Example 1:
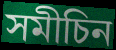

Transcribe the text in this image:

সমীচিন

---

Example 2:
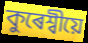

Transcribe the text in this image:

কুৰেশ্বীয়ে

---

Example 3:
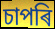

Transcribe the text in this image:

চাপৰি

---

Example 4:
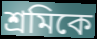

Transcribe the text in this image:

শ্ৰমিকে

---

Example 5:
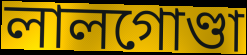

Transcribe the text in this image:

লালগোণ্ডা